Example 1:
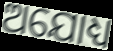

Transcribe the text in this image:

ଅଯୋଧ୍ୟ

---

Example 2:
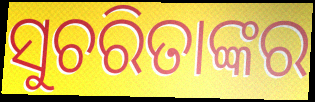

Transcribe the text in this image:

ସୁଚରିତାଙ୍କର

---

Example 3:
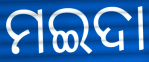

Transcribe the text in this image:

ମଇଦା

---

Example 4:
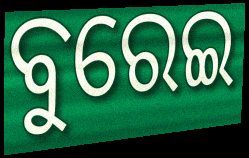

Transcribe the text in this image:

ବୁରେଇ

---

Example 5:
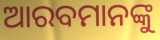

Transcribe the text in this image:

ଆରବମାନଙ୍କୁ